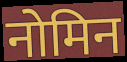
नोमिन